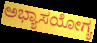
ಅಭ್ಯಾಸಯೋಗ್ಯ